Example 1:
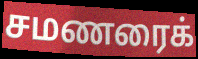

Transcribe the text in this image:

சமணரைக்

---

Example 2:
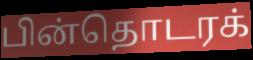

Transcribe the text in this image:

பின்தொடரக்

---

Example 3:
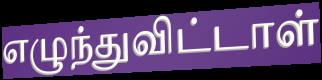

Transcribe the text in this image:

எழுந்துவிட்டாள்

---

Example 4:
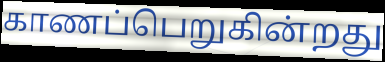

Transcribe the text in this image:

காணப்பெறுகின்றது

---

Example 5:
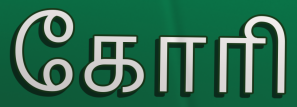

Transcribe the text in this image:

கோரி